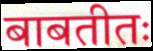
बाबतीतः